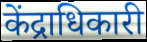
केंद्राधिकारी